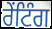
ਰੇਂਟਿੰਗ